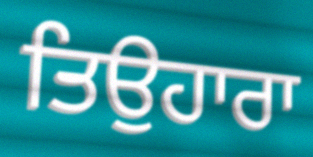
ਤਿਉਹਾਰਾ